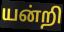
யன்றி